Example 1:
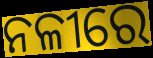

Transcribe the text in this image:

ନଳୀରେ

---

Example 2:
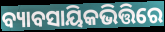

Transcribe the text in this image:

ବ୍ୟାବସାୟିକଭିତ୍ତିରେ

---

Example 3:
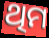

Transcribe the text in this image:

ଥିମ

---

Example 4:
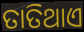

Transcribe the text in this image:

ତାତିଥାଏ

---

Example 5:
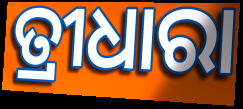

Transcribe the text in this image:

ତ୍ରୀଧାରା